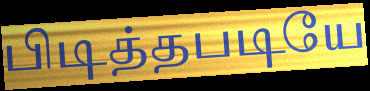
பிடித்தபடியே